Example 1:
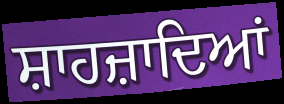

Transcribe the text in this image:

ਸ਼ਾਹਜ਼ਾਦਿਆਂ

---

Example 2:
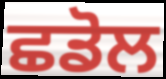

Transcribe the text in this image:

ਛਡੋਲ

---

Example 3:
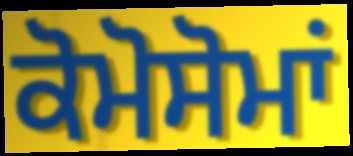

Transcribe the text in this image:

ਕੋਮੋਸੋਮਾਂ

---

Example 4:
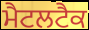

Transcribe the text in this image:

ਮੈਟਲਟੈਕ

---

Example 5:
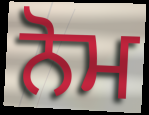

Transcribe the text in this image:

ਨੋਮ